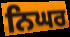
ਨਿਘਰ